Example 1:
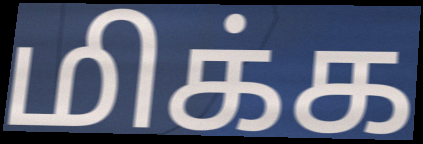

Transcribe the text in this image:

மிக்க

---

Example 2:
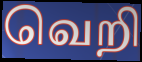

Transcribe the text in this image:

வெறி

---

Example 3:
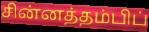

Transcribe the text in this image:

சின்னத்தம்பிப்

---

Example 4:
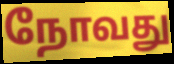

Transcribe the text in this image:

நோவது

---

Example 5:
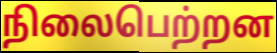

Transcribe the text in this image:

நிலைபெற்றன